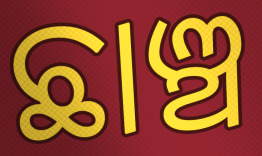
ଛାଞ୍ଚ